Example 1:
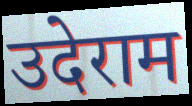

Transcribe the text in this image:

उदेराम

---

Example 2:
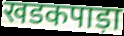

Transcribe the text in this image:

खडकपाड़ा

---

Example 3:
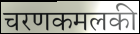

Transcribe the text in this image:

चरणकमलकी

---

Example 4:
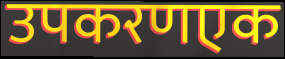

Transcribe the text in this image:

उपकरणएक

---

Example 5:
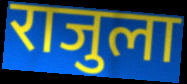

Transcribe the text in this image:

राजुला